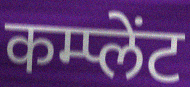
कम्प्लेंट